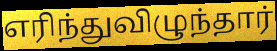
எரிந்துவிழுந்தார்